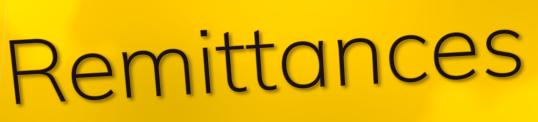
Remittances